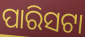
ପାରିସଟା